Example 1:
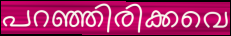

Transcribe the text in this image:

പറഞ്ഞിരിക്കവെ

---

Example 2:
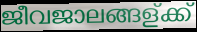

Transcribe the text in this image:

ജീവജാലങ്ങള്ക്ക്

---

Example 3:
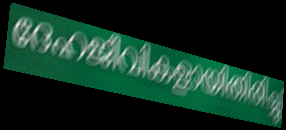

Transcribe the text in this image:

ദേഹജീവികളായിതിരിച്ചു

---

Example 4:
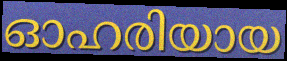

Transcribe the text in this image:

ഓഹരിയായ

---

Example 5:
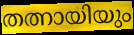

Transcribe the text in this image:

തത്നായിയും